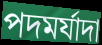
পদমর্যাদা